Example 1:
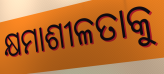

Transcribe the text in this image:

କ୍ଷମାଶୀଳତାକୁ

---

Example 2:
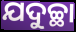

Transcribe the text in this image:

ଯଦୁଚ୍ଛା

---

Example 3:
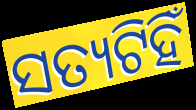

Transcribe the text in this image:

ସତ୍ୟଟିହିଁ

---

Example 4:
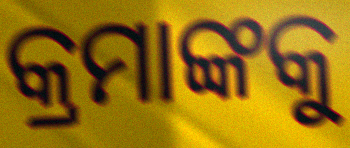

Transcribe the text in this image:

କ୍ରମାଙ୍କକୁ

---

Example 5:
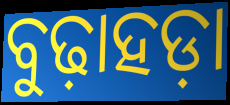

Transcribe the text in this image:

ବୁଢ଼ାହଡ଼ା